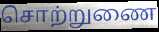
சொற்றுணை